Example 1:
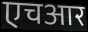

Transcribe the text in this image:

एचआर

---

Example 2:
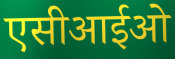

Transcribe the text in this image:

एसीआईओ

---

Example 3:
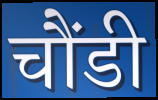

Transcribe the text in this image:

चौंडी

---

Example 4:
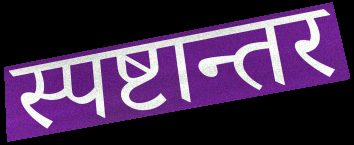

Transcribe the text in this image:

स्पष्टान्तर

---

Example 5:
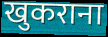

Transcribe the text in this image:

खुकराना